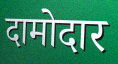
दामोदार